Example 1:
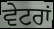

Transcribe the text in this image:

ਵੇਟਰਾਂ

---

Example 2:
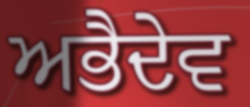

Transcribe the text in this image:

ਅਭੈਦੇਵ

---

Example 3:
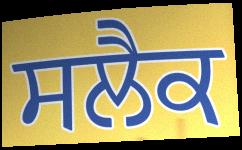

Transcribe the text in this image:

ਸਲੈਕ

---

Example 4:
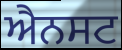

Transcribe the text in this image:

ਐਨਸਟ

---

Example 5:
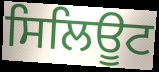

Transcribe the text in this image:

ਸਿਲਿਊਟ